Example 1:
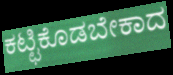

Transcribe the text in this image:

ಕಟ್ಟಿಕೊಡಬೇಕಾದ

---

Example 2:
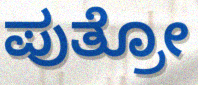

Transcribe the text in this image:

ಪುತ್ರೋ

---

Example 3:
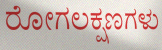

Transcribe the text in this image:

ರೋಗಲಕ್ಷಣಗಳು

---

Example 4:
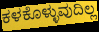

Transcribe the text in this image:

ಕಳಕೊಳ್ಳುವುದಿಲ್ಲ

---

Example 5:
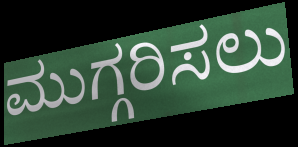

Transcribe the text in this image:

ಮುಗ್ಗರಿಸಲು